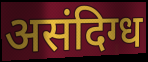
असंदिग्ध